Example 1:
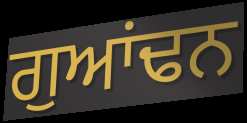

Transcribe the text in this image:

ਗੁਆਂਢਨ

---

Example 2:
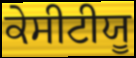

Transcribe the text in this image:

ਕੇਸੀਟੀਯੂ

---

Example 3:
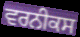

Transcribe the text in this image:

ਵਰਨੀਕਸ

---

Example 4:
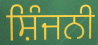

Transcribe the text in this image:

ਸ਼ਿੰਜਨੀ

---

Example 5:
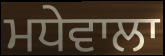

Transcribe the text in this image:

ਮਧੇਵਾਲਾ